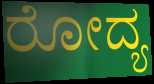
ರೋದ್ಯ